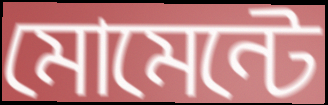
মোমেন্টে